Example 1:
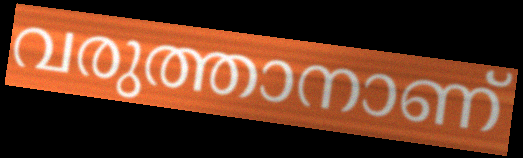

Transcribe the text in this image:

വരുത്താനാണ്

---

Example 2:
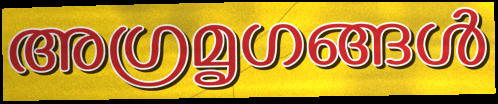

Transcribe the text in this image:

അഗ്രമൃഗങ്ങൾ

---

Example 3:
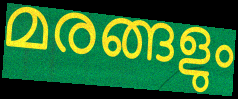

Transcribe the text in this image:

മരങ്ങളും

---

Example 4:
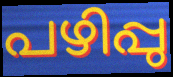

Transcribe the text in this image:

പഴിപ്പു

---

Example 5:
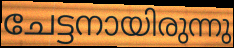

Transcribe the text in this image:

ചേട്ടനായിരുന്നു